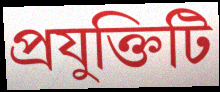
প্রযুক্তিটি